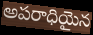
అపరాధియైన